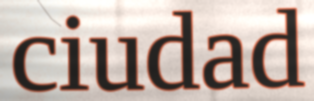
ciudad